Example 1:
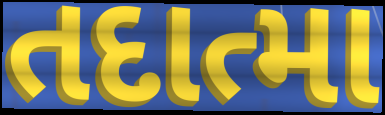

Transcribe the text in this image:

તદાત્મા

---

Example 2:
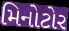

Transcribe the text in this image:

મિનોટોર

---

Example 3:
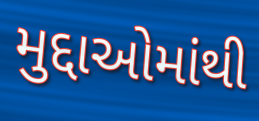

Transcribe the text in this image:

મુદ્દાઓમાંથી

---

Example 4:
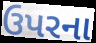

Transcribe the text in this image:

ઉપરના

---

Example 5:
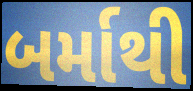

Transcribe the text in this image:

બર્માથી